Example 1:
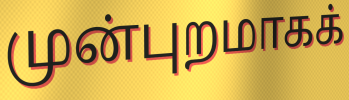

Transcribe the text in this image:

முன்புறமாகக்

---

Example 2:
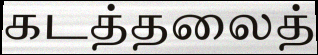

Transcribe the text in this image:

கடத்தலைத்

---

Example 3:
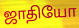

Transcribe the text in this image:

ஜாதியோ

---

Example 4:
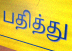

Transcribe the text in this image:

பதித்து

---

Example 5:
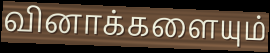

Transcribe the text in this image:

வினாக்களையும்